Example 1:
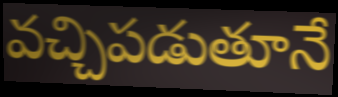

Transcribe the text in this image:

వచ్చిపడుతూనే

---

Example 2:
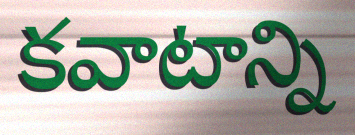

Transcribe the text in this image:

కవాటాన్ని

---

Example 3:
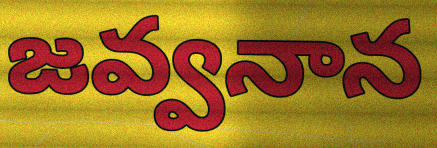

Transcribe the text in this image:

జవ్వనాన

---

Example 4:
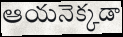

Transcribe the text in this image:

ఆయనెక్కడా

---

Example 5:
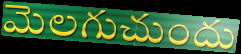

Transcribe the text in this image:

మెలగుచుందు